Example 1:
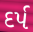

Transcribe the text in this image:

દર્પ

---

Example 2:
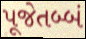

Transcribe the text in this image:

પૂજેતબ્બં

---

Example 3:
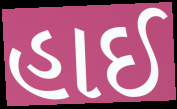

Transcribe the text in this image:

હાઈ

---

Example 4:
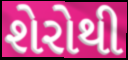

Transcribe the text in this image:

શેરોથી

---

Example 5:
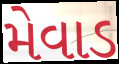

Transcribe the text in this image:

મેવાડ